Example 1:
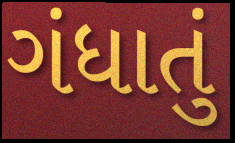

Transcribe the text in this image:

ગંધાતું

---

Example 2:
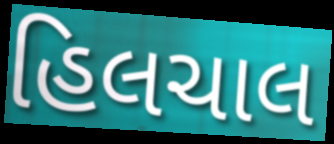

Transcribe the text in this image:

હિલચાલ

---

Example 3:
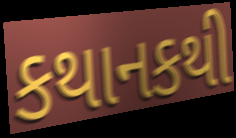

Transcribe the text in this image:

કથાનકથી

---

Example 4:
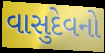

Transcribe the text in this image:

વાસુદેવનો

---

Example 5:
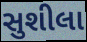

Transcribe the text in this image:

સુશીલા